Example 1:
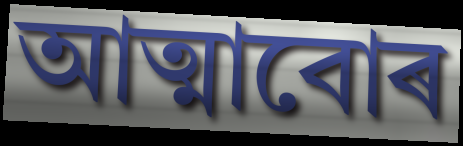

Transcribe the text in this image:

আত্মাবোৰ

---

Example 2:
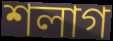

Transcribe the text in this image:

শলাগ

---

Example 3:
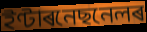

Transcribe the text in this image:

ইণ্টাৰনেছনেলৰ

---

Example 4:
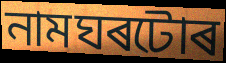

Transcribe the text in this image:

নামঘৰটোৰ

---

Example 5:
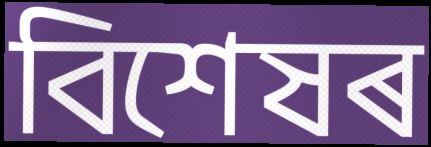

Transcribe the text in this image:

বিশেষৰ